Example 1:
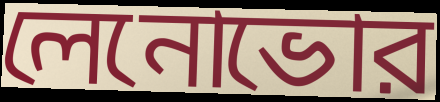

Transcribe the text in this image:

লেনোভোর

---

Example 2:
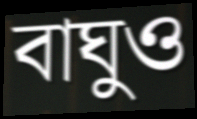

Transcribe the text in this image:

বাঘুও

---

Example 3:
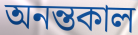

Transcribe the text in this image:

অনন্তকাল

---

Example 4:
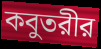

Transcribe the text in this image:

কবুতরীর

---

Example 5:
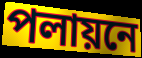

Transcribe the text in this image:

পলায়নে